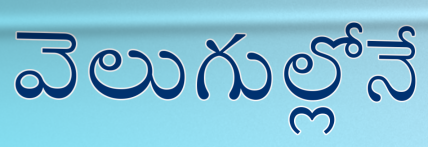
వెలుగుల్లోనే